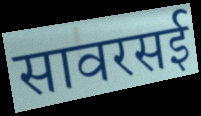
सावरसई